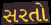
સરતો